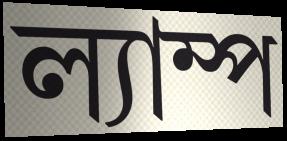
ল্যাম্প